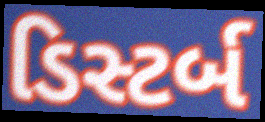
ડિસ્ટર્બ